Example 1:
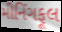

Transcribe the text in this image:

મીનિંગફૂલ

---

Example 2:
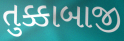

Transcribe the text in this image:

તુક્કાબાજી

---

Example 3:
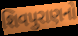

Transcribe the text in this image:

શિવપુરાણનો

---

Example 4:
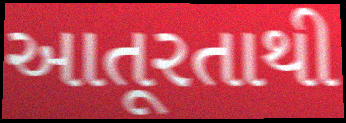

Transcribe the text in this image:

આતૂરતાથી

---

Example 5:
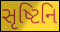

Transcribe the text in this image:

સૃષ્ટિનિ